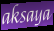
aksaya